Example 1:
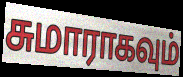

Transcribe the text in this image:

சுமாராகவும்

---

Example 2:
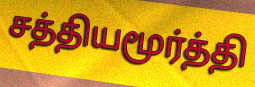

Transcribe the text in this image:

சத்தியமூர்த்தி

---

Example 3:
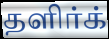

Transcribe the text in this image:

தளிர்க்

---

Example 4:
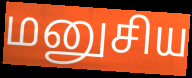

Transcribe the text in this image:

மனுசிய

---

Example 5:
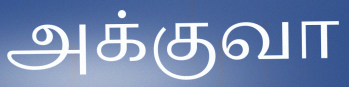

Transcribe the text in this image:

அக்குவா